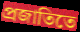
প্রজাতিতে